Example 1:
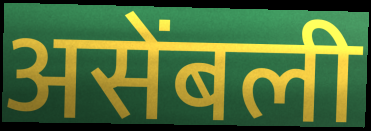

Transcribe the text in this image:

असेंबली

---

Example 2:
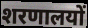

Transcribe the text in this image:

शरणालयों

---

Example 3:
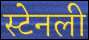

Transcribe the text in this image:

स्टेनली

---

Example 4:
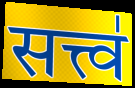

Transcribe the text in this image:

सत्त्व॑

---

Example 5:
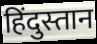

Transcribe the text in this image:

हिंदुस्‍तान